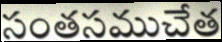
సంతసముచేత